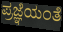
ಪ್ರಜ್ಞೆಯಂತೆ